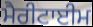
ਮੈਰੀਟਾਈਮ